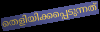
തെളിയിക്കപ്പെടുന്നത്